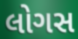
લોગસ